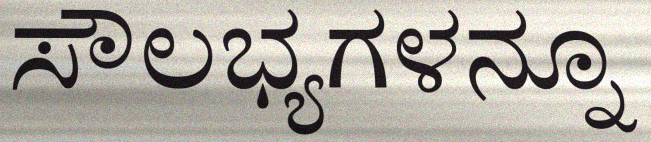
ಸೌಲಭ್ಯಗಳನ್ನೂ